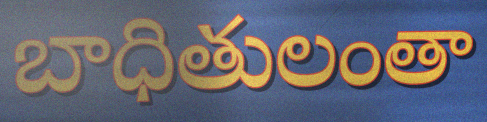
బాధితులంతా